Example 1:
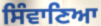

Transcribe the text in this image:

ਸਿੰਵਾਣਿਆ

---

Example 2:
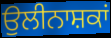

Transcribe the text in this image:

ਉਲੀਨਾਸ਼ਕਾਂ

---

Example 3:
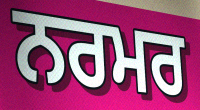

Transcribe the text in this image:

ਨਰਮਰ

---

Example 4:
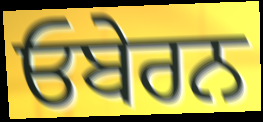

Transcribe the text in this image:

ਓਬੇਰਨ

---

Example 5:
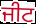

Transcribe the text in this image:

ਜੀਟ